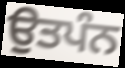
ਉਤਪੰਨ